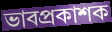
ভাবপ্রকাশক